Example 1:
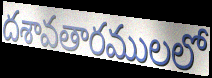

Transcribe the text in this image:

దశావతారములలో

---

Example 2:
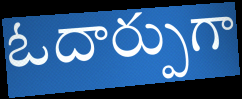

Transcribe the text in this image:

ఓదార్పుగా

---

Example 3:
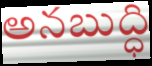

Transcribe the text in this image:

అనబుద్ధి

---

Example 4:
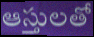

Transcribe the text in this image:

ఆస్తులతో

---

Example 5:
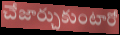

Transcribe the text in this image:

చేజార్చుకుంటారో